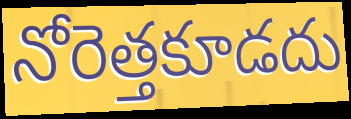
నోరెత్తకూడదు